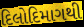
દિલોદિમાગથી